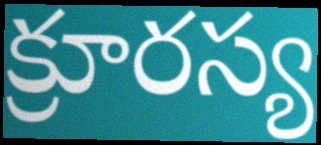
క్రూరస్య